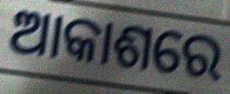
ଆକାଶରେ